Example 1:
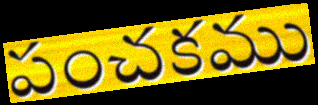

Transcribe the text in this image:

పంచకము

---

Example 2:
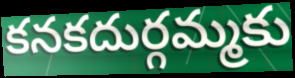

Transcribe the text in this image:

కనకదుర్గమ్మకు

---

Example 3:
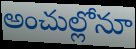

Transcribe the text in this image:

అంచుల్లోనూ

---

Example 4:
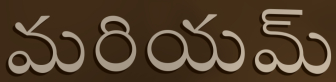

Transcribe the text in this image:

మరియమ్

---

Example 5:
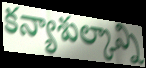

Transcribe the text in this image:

కన్యాశుల్కాన్ని